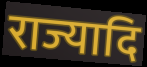
राज्यादि